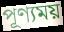
পূণ্যময়